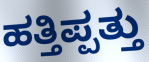
ಹತ್ತಿಪ್ಪತ್ತು